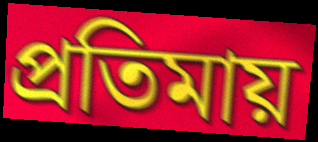
প্রতিমায়